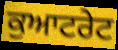
ਕੁਆਟਰੇਟ